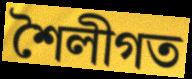
শৈলীগত